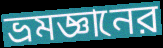
ভ্রমজ্ঞানের